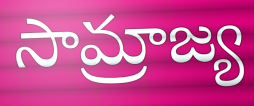
సామ్రాజ్య